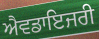
ਐਵਡਾਇਜਰੀ